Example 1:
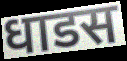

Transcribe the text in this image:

धाडस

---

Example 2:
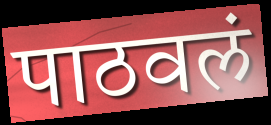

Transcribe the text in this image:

पाठवलं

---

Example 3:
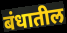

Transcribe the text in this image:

बंधातील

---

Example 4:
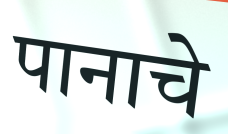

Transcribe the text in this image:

पानाचे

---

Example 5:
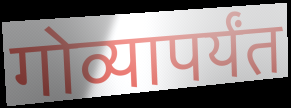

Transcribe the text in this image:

गोव्यापर्यंत